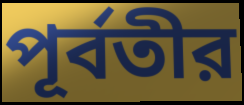
পূর্বতীর